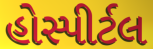
હોસ્પીર્ટલ